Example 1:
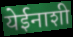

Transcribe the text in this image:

येईनाशी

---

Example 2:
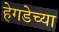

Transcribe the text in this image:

हेगडेच्या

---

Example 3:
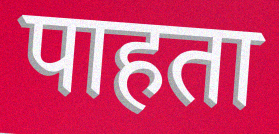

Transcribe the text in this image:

पाहता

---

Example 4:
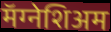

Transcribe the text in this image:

मॅग्नेशिअम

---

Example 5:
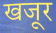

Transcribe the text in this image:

खजूर